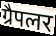
ग्रैपलर